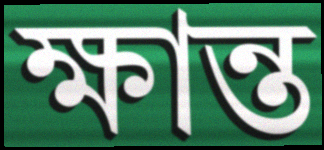
ক্ষান্ত